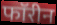
फॉरीन